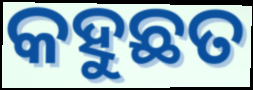
କହୁଛତ